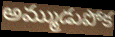
అమ్ముడుపోక